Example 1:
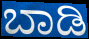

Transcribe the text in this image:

ಬಾಡಿ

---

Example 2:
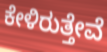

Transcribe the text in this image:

ಕೇಳಿರುತ್ತೇವೆ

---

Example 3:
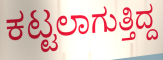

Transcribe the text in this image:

ಕಟ್ಟಲಾಗುತ್ತಿದ್ದ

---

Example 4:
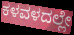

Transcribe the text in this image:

ಕಳವಳದಲ್ಲೇ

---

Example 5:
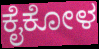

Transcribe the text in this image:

ಕೈಕೋಳ